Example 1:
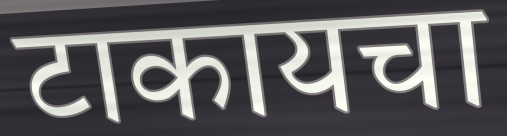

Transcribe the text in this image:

टाकायचा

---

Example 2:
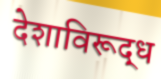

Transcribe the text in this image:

देशाविरूद्ध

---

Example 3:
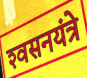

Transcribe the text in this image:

श्वसनयंत्रे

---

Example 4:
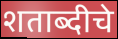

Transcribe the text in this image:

शताब्दीचे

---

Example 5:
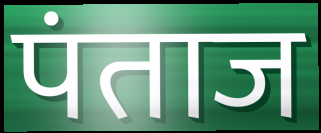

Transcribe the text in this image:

पंताज